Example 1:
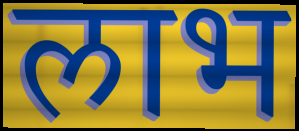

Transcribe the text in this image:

लाभ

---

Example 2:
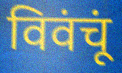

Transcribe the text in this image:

विवंचूं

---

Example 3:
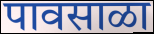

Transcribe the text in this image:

पावसाळा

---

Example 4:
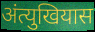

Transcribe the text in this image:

अंत्युखियास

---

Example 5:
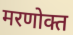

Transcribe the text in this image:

मरणोक्त